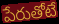
పేరుతోటే